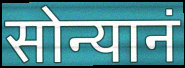
सोन्यानं